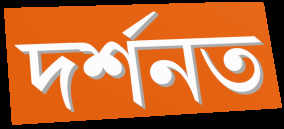
দৰ্শনত